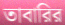
তাবারির